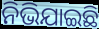
ନିଭିଯାଇଛି